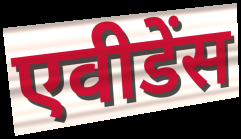
एवीडेंस